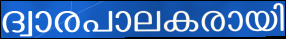
ദ്വാരപാലകരായി